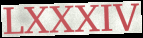
LXXXIV